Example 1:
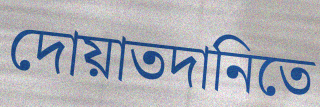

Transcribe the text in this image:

দোয়াতদানিতে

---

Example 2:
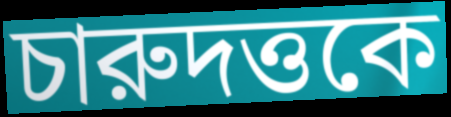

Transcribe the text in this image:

চারুদত্তকে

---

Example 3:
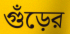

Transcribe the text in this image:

গুঁড়ের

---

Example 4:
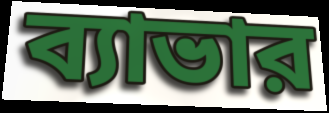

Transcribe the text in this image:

ব্যাভার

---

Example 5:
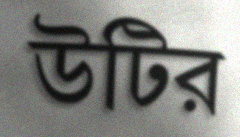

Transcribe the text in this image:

উটির